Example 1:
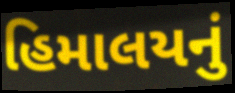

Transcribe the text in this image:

હિમાલયનું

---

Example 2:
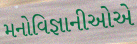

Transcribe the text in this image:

મનોવિજ્ઞાનીઓએ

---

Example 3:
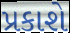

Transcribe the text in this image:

પ્રકાશે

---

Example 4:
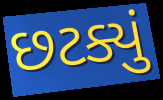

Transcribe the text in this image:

છટક્યું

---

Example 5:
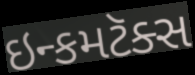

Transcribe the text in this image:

ઇન્કમટૅક્સ